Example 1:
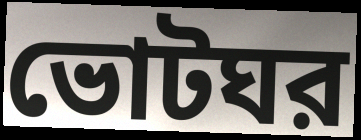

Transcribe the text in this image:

ভোটঘর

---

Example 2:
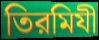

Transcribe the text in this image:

তিরমিযী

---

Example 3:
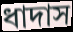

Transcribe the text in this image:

ধাদাস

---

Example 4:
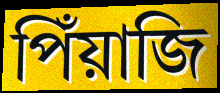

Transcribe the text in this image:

পিঁয়াজি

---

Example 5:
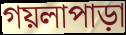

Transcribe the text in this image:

গয়লাপাড়া